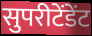
सुपरीटेंडेंट